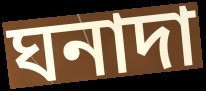
ঘনাদা